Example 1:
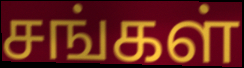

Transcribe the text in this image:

சங்கள்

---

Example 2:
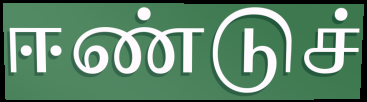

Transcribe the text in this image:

ஈண்டுச்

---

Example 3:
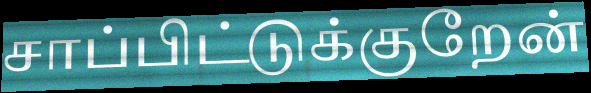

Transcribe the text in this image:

சாப்பிட்டுக்குறேன்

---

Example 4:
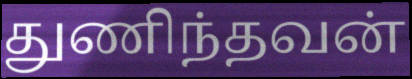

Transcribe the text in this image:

துணிந்தவன்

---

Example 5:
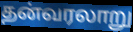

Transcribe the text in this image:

தன்வரலாறு